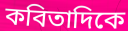
কবিতাদিকে